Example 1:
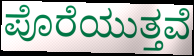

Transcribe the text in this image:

ಪೊರೆಯುತ್ತವೆ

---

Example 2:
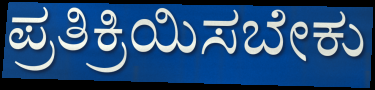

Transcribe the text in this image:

ಪ್ರತಿಕ್ರಿಯಿಸಬೇಕು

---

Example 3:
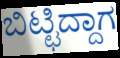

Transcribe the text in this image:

ಬಿಟ್ಟಿದ್ದಾಗ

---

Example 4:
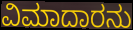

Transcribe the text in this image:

ವಿಮಾದಾರನು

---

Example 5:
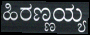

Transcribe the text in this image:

ಹಿರಣ್ಣಯ್ಯ